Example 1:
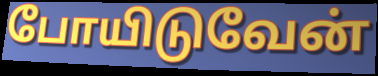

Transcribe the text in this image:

போயிடுவேன்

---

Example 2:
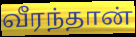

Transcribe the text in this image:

வீரந்தான்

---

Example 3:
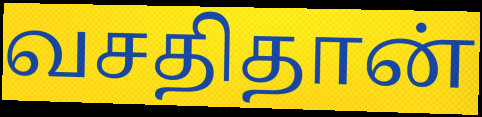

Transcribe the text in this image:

வசதிதான்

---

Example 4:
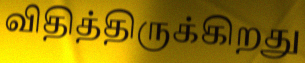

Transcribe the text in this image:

விதித்திருக்கிறது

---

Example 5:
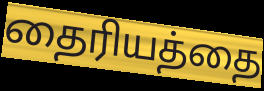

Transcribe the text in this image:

தைரியத்தை